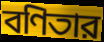
বণিতার